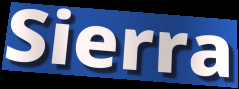
Sierra